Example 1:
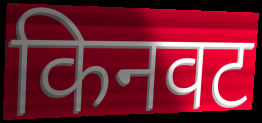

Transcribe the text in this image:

किनवट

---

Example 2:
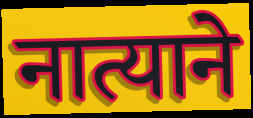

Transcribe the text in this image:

नात्याने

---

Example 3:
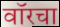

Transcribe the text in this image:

वॉरचा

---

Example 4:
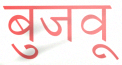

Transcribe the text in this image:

बुजवू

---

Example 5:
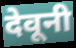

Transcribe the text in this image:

देवूनी